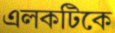
এলকটিকে